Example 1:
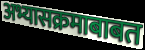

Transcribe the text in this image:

अभ्यासक्रमाबाबत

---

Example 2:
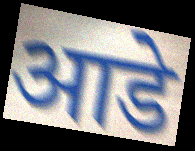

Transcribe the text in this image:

आडे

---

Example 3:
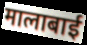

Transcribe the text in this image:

मालाबाई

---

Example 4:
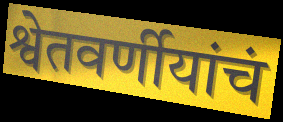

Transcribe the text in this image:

श्वेतवर्णीयांचं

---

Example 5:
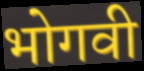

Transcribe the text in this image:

भोगवी